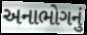
અનાભોગનું